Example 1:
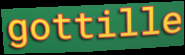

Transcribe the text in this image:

gottille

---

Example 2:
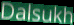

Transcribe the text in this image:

Dalsukh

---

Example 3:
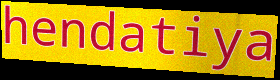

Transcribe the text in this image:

hendatiya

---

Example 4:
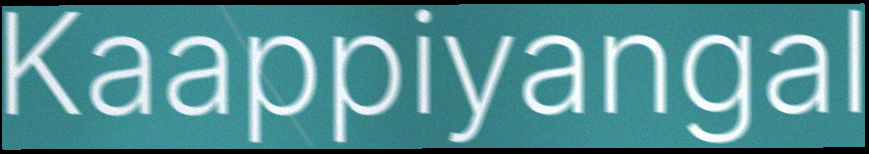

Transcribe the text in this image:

Kaappiyangal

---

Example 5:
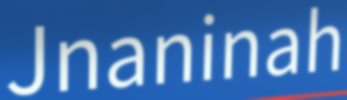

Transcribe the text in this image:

Jnaninah